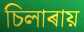
চিলাৰায়